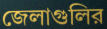
জেলাগুলির